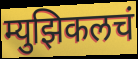
म्युझिकलचं